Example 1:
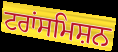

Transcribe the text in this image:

ਟਰਾਂਸਮਿਸ਼ਨ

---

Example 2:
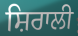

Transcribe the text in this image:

ਸ਼ਿਰਾਲੀ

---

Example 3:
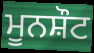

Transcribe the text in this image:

ਮੂਨਸ਼ੌਟ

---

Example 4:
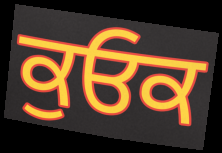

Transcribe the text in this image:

ਕੁਓਕ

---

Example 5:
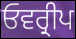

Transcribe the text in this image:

ਓਵਰ੍ਰੀਪ